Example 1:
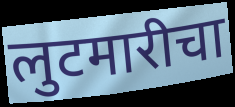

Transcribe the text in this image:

लुटमारीचा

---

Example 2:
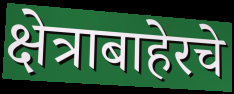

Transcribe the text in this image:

क्षेत्राबाहेरचे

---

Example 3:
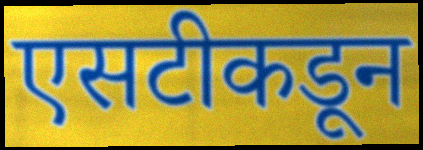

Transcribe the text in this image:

एसटीकडून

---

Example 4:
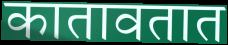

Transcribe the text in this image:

कातावतात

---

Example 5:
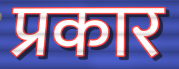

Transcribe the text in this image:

प्रकार